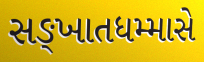
સઙ્ખાતધમ્માસે